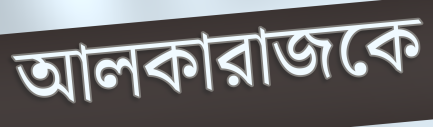
আলকারাজকে